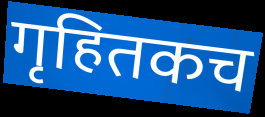
गृहितकच